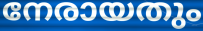
നേരായതും